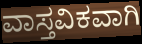
ವಾಸ್ತವಿಕವಾಗಿ